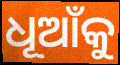
ଧୂଆଁକୁ